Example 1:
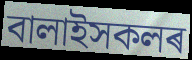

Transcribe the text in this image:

বালাইসকলৰ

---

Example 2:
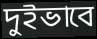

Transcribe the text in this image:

দুইভাবে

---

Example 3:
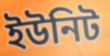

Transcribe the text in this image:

ইউনিট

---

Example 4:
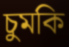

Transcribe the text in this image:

চুমকি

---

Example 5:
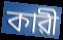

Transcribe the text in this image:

কাৱী